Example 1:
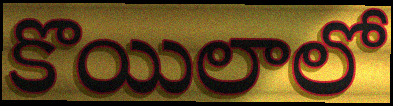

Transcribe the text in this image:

కొయిలాలో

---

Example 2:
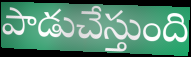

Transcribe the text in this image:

పాడుచేస్తుంది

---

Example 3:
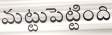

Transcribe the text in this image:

మట్టుపెట్టింది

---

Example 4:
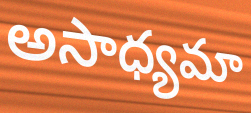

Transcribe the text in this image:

అసాధ్యమా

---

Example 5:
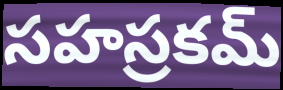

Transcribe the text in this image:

సహస్రకమ్